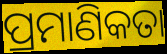
ପ୍ରମାଣିକତା